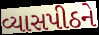
વ્યાસપીઠને